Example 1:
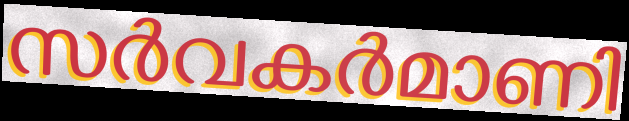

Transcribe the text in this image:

സർവകർമാണി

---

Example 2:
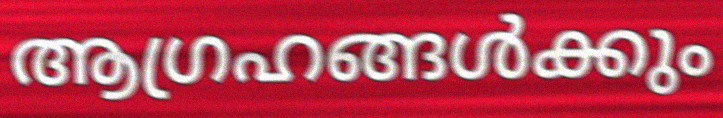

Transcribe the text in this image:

ആഗ്രഹങ്ങൾക്കും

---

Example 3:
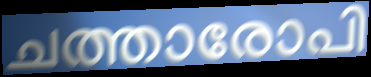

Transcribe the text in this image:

ചത്താരോപി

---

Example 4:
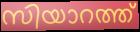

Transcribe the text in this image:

സിയാറത്ത്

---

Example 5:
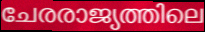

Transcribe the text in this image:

ചേരരാജ്യത്തിലെ